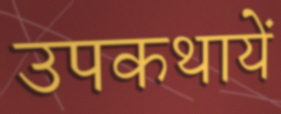
उपकथायें